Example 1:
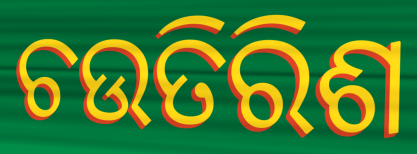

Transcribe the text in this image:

ଚଉତିରିଶ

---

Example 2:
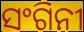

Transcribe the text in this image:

ସଂଗିନୀ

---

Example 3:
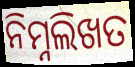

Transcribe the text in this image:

ନିମ୍ନଲିଖତ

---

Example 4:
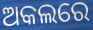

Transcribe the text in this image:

ଅକଲରେ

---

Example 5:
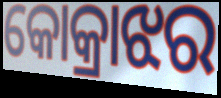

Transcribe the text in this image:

କୋକ୍ରାଝର